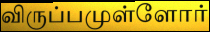
விருப்பமுள்ளோர்